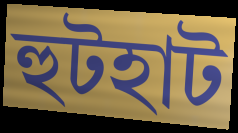
হুটহাট